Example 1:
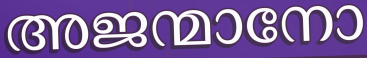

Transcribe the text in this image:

അജന്മാനോ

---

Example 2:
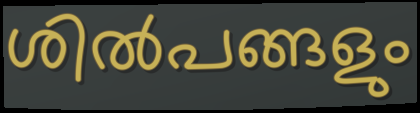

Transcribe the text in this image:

ശിൽപങ്ങളും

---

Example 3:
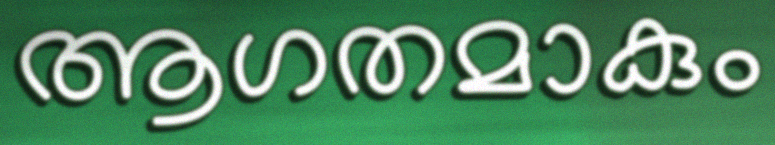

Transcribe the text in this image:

ആഗതമാകും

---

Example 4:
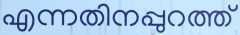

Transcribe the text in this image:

എന്നതിനപ്പുറത്ത്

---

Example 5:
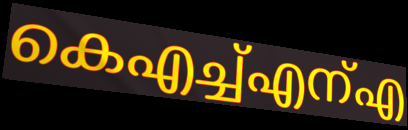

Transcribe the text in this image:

കെഎച്ച്എന്എ